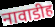
नावाडीह